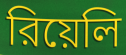
রিয়েলি